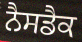
ਨੈਸਡੈਕ